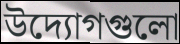
উদ্যোগগুলো